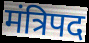
मंत्रिपद